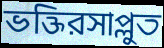
ভক্তিরসাপ্লুত